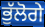
ਭੁੱਲੋਗੇ